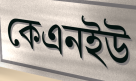
কেএনইউ